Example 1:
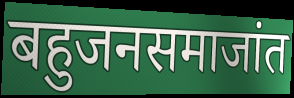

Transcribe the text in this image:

बहुजनसमाजांत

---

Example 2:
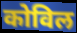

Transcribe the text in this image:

कोविल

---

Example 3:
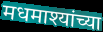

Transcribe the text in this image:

मधमाश्‍यांच्या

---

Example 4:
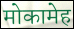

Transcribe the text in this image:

मोकामेह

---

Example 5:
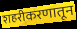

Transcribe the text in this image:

शहरीकरणातून